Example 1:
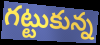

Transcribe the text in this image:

గట్టుకున్న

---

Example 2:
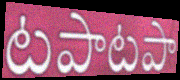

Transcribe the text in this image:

టపాటపా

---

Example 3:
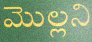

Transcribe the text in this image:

మొల్లని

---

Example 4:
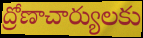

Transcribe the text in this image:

ద్రోణాచార్యులకు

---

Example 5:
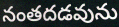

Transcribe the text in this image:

నంతదడవును